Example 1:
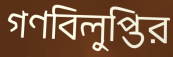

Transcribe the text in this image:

গণবিলুপ্তির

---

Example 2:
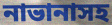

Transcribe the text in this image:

নাভানাসহ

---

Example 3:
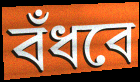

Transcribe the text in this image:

বঁধবে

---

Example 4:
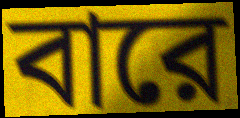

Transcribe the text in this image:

বারে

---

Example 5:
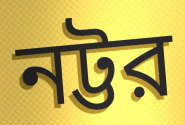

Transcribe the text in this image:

নট্টর